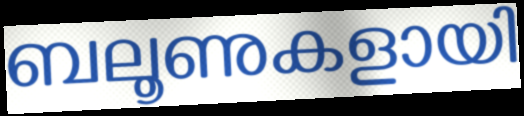
ബലൂണുകളായി